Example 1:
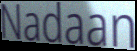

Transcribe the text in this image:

Nadaan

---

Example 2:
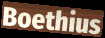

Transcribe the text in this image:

Boethius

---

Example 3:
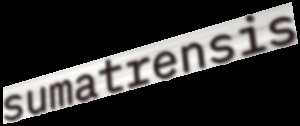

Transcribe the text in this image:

sumatrensis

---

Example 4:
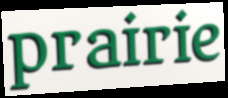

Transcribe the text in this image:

prairie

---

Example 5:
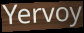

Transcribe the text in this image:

Yervoy